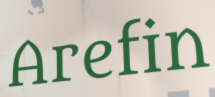
Arefin